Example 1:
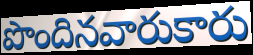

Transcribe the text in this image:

పొందినవారుకారు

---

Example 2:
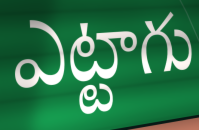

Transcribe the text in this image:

ఎట్టాగు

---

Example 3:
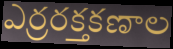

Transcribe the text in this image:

ఎర్రరక్తకణాల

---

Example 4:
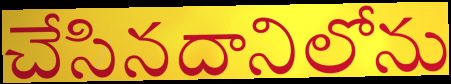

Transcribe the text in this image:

చేసినదానిలోను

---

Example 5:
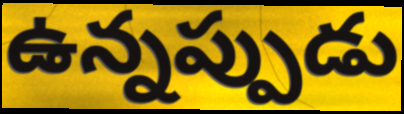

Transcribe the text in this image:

ఉన్నప్పుడు